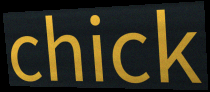
chick